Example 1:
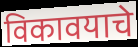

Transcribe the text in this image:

विकावयाचे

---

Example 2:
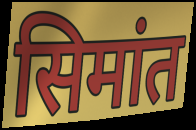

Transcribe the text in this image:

सिमांत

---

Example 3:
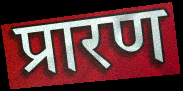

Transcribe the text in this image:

प्रारण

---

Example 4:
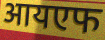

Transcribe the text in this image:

आयएफ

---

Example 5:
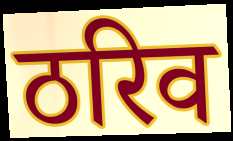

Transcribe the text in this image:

ठरिव